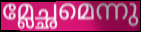
മ്ലേച്ഛമെന്നു